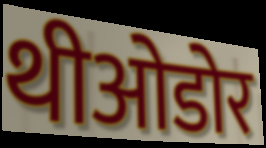
थीओडोर